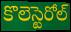
కొలెస్టెరోల్